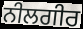
ਨੀਲਗੀਰ